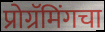
प्रोग्रॅमिंगचा